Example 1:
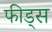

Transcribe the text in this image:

फीड्स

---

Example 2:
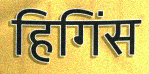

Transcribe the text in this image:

हिगिंस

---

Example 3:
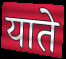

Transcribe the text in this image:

याते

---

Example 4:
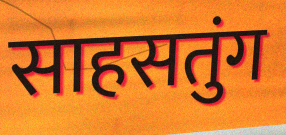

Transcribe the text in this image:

साहसतुंग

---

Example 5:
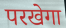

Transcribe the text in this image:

परखेगा